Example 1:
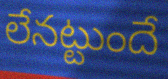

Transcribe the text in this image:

లేనట్టుందే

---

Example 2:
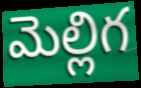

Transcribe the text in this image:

మెల్లిగ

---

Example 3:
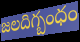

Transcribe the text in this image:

జలదిగ్బంధం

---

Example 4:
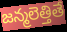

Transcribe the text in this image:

జన్మలెత్తితే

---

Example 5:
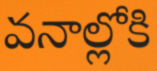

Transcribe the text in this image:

వనాల్లోకి